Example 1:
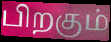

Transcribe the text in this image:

பிறகும்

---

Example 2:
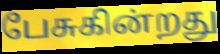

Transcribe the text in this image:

பேசுகின்றது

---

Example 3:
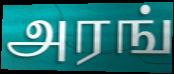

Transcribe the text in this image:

அரங்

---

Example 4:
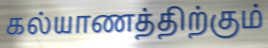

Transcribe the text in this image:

கல்யாணத்திற்கும்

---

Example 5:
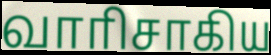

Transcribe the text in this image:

வாரிசாகிய